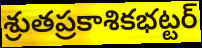
శ్రుతప్రకాశికభట్టర్